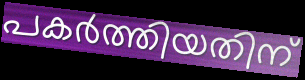
പകർത്തിയതിന്